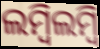
ଲମ୍ବିଲମ୍ବି